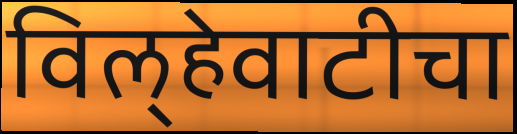
विल्हेवाटीचा